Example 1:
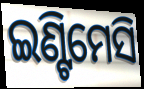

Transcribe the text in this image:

ଇଣ୍ଟିମେସି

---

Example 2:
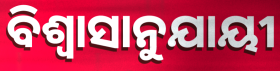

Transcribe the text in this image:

ବିଶ୍ୱାସାନୁଯାୟୀ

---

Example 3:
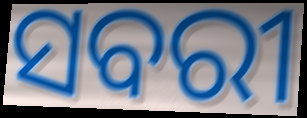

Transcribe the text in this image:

ସବରୀ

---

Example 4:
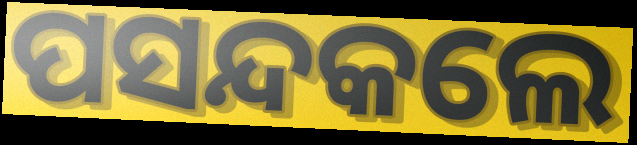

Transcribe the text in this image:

ପସନ୍ଦକଲେ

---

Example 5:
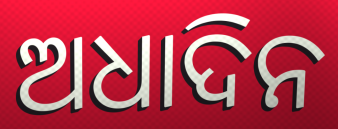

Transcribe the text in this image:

ଅଧାଦିନ